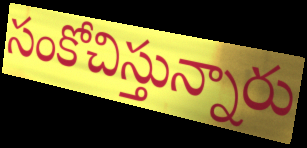
సంకోచిస్తున్నారు